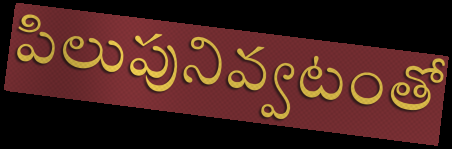
పిలుపునివ్వటంతో